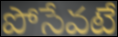
పోసేవటే